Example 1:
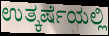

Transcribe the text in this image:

ಉತ್ಕರ್ಷೆಯಲ್ಲಿ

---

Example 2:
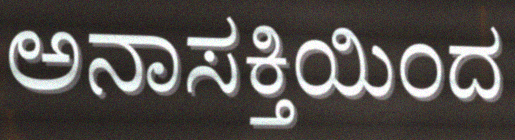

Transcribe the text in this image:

ಅನಾಸಕ್ತಿಯಿಂದ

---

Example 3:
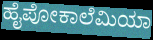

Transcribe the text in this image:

ಹೈಪೋಕಾಲೆಮಿಯಾ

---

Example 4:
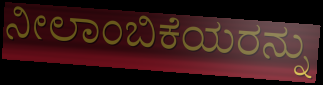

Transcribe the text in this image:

ನೀಲಾಂಬಿಕೆಯರನ್ನು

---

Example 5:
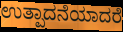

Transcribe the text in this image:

ಉತ್ಪಾದನೆಯಾದರೆ